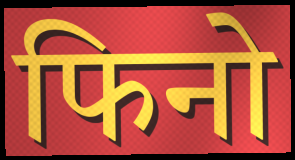
फिनो